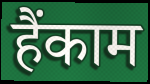
हैंकाम